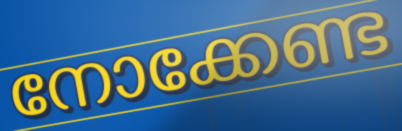
നോക്കേണ്ട